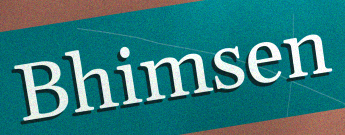
Bhimsen